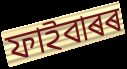
ফাইবাৰৰ